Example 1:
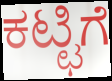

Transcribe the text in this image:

ಕಟ್ಟಿಗೆ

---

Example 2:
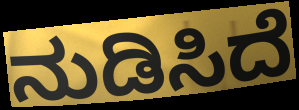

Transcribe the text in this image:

ನುಡಿಸಿದೆ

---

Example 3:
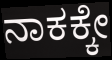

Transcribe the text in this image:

ನಾಕಕ್ಕೇ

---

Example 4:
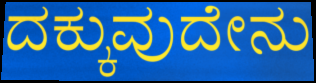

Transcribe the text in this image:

ದಕ್ಕುವುದೇನು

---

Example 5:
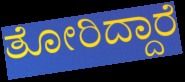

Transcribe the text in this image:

ತೋರಿದ್ದಾರೆ